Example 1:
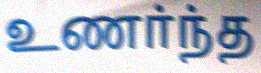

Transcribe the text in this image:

உணர்ந்த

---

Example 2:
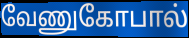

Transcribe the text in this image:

வேணுகோபால்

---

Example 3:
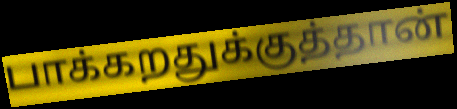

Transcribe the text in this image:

பாக்கறதுக்குத்தான்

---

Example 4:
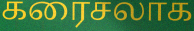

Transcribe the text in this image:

கரைசலாக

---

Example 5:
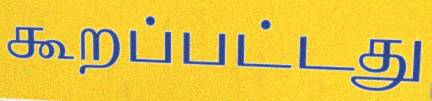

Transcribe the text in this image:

கூறப்பட்டது